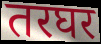
तरघर